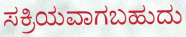
ಸಕ್ರಿಯವಾಗಬಹುದು